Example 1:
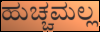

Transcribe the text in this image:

ಹುಚ್ಚಮಲ್ಲ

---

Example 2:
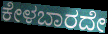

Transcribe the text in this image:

ಕೇಳಬಾರದೇ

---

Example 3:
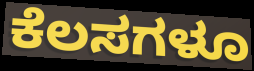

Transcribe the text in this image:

ಕೆಲಸಗಳೂ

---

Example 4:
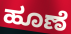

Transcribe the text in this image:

ಹೂಣೆ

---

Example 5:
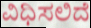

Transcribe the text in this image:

ವಿಧಿಸಲಿದೆ